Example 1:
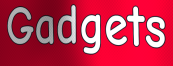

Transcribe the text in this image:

Gadgets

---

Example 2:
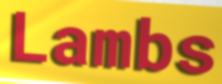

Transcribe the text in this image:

Lambs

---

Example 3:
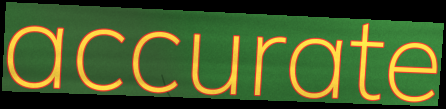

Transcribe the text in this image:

accurate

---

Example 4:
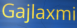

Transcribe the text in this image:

Gajlaxmi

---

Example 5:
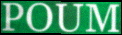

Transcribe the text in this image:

POUM